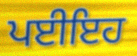
ਪਈਇਹ